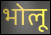
भोलू